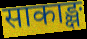
साकाङ्क्ष